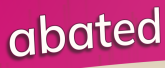
abated